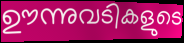
ഊന്നുവടികളുടെ